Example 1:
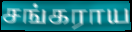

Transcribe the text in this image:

சங்கராய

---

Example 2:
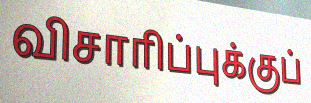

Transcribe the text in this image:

விசாரிப்புக்குப்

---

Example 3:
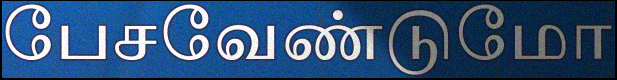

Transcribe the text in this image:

பேசவேண்டுமோ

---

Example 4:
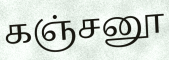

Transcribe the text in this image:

கஞ்சனூ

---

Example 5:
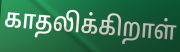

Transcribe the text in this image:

காதலிக்கிறாள்